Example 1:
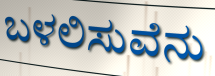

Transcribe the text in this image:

ಬಳಲಿಸುವೆನು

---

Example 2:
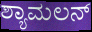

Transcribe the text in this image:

ಶ್ಯಾಮಲನ್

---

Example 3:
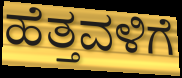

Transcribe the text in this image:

ಹೆತ್ತವಳಿಗೆ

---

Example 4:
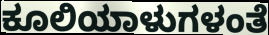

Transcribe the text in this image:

ಕೂಲಿಯಾಳುಗಳಂತೆ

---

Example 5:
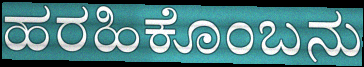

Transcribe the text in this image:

ಹರಹಿಕೊಂಬನು